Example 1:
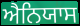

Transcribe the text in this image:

ਐਨਿਯਾਸ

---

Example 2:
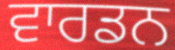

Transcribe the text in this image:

ਵਾਰਡਨ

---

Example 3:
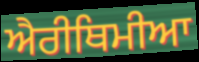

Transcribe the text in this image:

ਐਰੀਥਿਮੀਆ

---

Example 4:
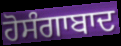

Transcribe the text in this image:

ਹੋਸੰਗਾਬਾਦ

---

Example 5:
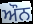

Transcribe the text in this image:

ਔਨ